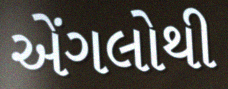
એંગલોથી